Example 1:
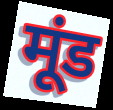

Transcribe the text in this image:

मूंड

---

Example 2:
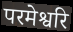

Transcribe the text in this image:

परमेश्वरि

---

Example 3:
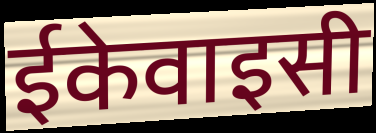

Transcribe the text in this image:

ईकेवाइसी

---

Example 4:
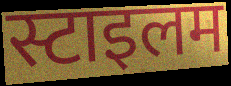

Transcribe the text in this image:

स्टाइलम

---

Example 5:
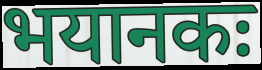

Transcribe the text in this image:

भयानकः